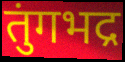
तुंगभद्र